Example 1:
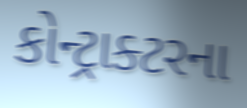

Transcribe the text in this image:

કોન્ટ્રાક્ટરના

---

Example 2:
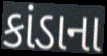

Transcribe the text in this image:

કાંડાના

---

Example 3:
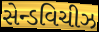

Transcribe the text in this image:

સેન્ડવિચીઝ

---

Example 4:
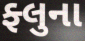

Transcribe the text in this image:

ફ્લુના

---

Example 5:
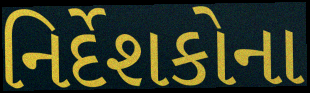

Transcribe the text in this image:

નિર્દેશકોના